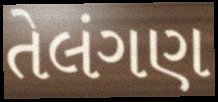
તેલંગણ